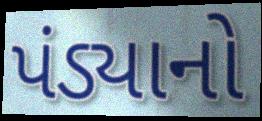
પંડ્યાનો